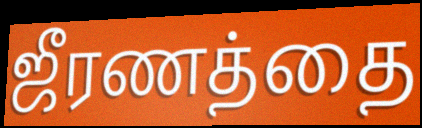
ஜீரணத்தை